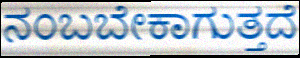
ನಂಬಬೇಕಾಗುತ್ತದೆ